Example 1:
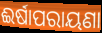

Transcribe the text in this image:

ଈର୍ଷାପରାୟଣା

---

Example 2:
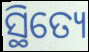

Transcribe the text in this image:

ସ୍ଥିତ୍ୟେ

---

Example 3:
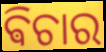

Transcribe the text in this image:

ଵିଚାର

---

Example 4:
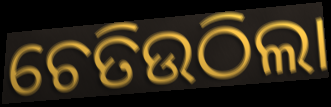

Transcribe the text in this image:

ଚେତିଉଠିଲା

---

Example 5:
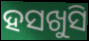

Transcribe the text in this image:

ହସଖୁସି